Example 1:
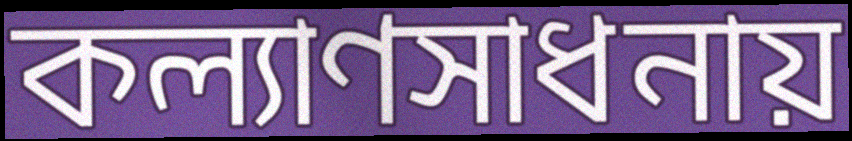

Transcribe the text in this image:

কল্যাণসাধনায়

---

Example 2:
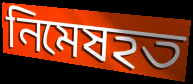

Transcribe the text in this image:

নিমেষহত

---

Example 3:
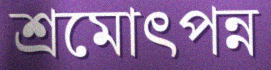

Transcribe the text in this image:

শ্রমোৎপন্ন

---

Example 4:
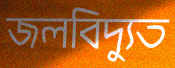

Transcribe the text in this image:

জলবিদ্যুত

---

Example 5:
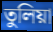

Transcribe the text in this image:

তুলিয়া